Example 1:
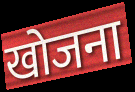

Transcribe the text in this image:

खोजना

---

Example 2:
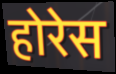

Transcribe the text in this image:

होरेस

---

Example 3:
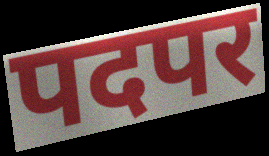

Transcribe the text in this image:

पदपर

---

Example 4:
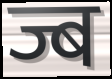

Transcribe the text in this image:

ज्ब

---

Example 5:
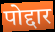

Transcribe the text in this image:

पोद्दार